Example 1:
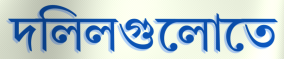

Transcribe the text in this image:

দলিলগুলোতে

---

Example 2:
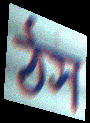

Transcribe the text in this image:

ঠস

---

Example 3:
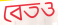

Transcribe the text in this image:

বেতও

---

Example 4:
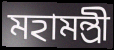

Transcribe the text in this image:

মহামন্ত্রী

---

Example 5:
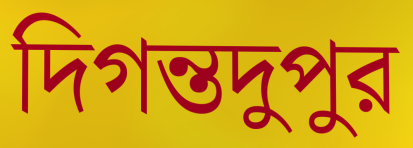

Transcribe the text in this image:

দিগন্তদুপুর